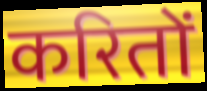
करितों